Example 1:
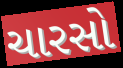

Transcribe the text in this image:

ચારસો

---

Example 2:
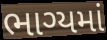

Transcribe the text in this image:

ભાગ્યમાં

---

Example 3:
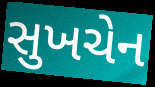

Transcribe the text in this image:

સુખચેન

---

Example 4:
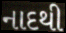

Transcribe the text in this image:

નાદથી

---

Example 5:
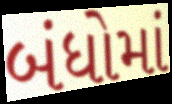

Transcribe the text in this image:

બંધોમાં